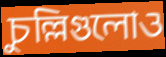
চুল্লিগুলোও